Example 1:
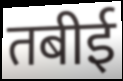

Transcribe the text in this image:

तबीई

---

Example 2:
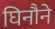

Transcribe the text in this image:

घिनौने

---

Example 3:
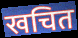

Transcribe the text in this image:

खचित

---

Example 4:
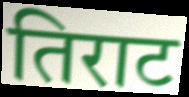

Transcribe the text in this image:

तिराट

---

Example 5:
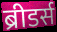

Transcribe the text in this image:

ब्रीडर्स